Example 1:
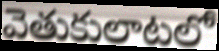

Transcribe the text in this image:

వెతుకులాటలో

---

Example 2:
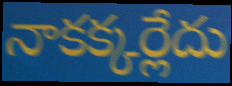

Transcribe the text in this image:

నాకక్కర్లేదు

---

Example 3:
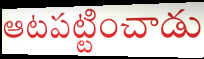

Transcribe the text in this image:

ఆటపట్టించాడు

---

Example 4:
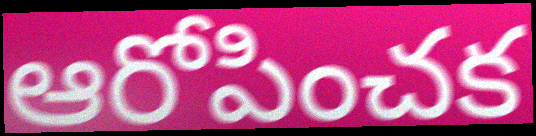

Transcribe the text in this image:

ఆరోపించక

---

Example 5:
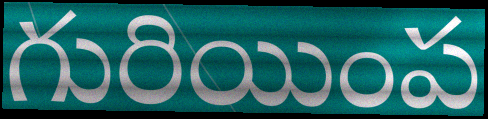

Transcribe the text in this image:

గురియింప